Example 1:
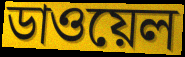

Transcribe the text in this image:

ডাওয়েল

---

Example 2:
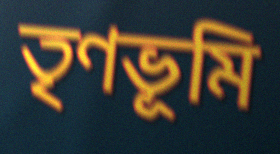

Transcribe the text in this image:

তৃণভূমি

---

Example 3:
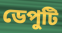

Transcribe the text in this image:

ডেপুটি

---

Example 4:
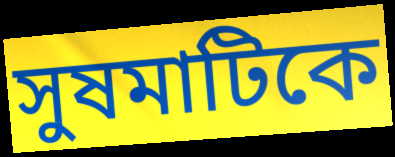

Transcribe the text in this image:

সুষমাটিকে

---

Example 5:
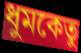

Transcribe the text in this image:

ধুমকেতু